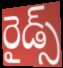
రైడ్స్